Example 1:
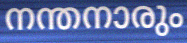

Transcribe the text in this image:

നന്തനാരും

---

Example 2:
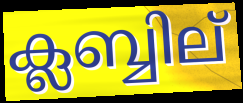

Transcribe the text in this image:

ക്ലബ്ബില്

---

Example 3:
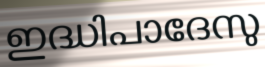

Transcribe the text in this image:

ഇദ്ധിപാദേസു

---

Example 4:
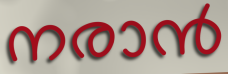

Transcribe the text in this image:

നരാൻ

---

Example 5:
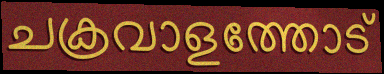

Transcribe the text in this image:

ചക്രവാളത്തോട്